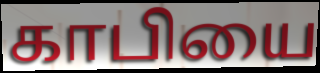
காபியை